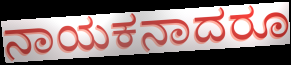
ನಾಯಕನಾದರೂ